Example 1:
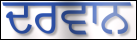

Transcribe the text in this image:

ਦਰਵਾਨ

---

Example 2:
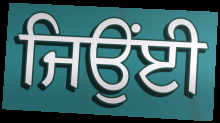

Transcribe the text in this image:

ਜਿਉਂਈ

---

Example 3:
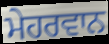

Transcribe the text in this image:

ਮੇਹਰਵਾਨ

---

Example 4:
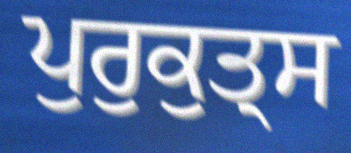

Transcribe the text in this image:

ਪੁਰੁਕੁਤ੍ਸ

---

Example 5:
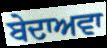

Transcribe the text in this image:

ਬੇਦਾਅਵਾ